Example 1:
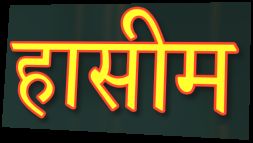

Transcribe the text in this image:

हासीम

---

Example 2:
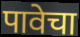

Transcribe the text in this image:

पावेचा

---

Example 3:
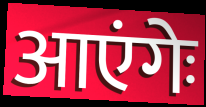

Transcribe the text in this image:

आएंगेः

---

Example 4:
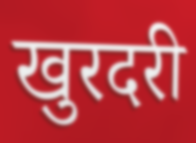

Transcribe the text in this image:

खुरदरी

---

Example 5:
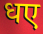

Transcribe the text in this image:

धए